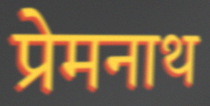
प्रेमनाथ